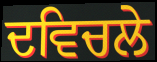
ਦਵਿਚਲੇ